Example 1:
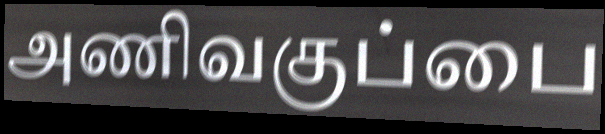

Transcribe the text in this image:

அணிவகுப்பை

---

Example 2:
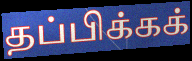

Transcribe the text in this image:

தப்பிக்கக்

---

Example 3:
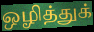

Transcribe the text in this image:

ஒழித்துக்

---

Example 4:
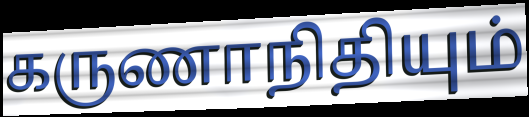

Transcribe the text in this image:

கருணாநிதியும்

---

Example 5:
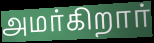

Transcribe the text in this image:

அமர்கிறார்